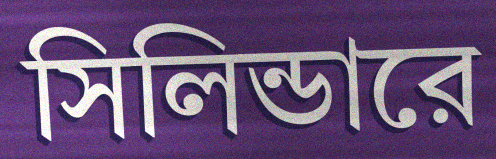
সিলিন্ডারে